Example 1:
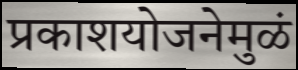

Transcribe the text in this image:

प्रकाशयोजनेमुळं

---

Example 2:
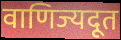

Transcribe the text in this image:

वाणिज्यदूत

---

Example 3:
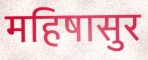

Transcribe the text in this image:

महिषासुर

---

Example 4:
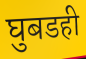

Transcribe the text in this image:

घुबडही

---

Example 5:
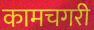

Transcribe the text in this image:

कामचगरी